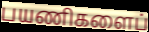
பயணிகளைப்